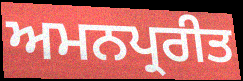
ਅਮਨਪ੍ਰਰੀਤ